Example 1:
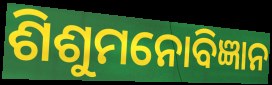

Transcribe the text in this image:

ଶିଶୁମନୋବିଜ୍ଞାନ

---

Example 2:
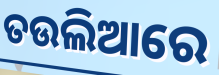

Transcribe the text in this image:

ତଉଲିଆରେ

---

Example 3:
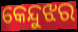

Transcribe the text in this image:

କେନ୍ଦୁଝର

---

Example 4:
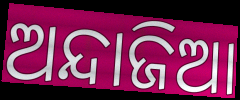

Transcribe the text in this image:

ଅନ୍ଦାଜିଆ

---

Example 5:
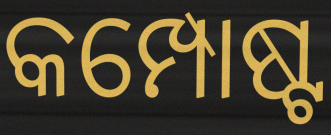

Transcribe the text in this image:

କମ୍ପୋଷ୍ଟ